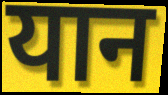
यान